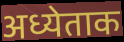
अध्येताक